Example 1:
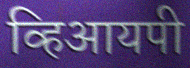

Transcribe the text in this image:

व्हिआयपी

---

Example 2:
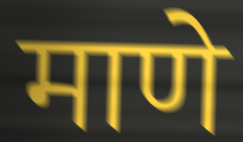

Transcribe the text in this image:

माणे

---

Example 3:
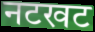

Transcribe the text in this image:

नटखट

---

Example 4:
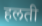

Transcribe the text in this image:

हलती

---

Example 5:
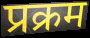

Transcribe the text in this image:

प्रक्रम